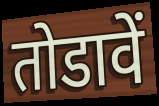
तोडावें